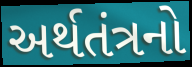
અર્થતંત્રનો